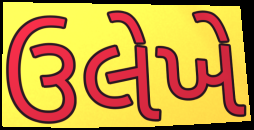
ઉલેખે